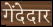
गेंदेदार